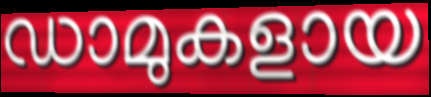
ഡാമുകളായ